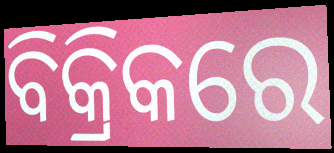
ବିକ୍ରିକରେ